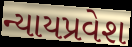
ન્યાયપ્રવેશ